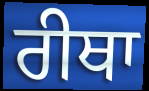
ਰੀਥਾ